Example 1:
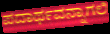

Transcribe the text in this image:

ಪದಾರ್ಥವನ್ನಾಗಲಿ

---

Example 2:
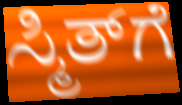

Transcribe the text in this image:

ಸ್ಮಿತ್‌ಗೆ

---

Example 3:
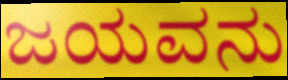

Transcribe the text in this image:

ಜಯವನು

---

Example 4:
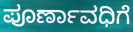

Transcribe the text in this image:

ಪೂರ್ಣಾವಧಿಗೆ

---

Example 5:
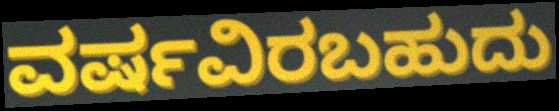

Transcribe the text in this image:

ವರ್ಷವಿರಬಹುದು